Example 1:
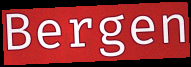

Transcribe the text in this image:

Bergen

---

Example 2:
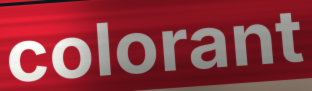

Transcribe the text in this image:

colorant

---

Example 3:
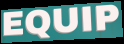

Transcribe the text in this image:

EQUIP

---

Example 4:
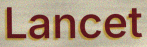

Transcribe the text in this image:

Lancet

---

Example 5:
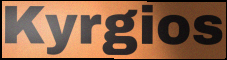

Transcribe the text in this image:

Kyrgios